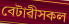
বেটাৱীসকল